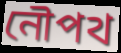
নৌপথ